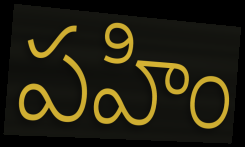
పహిం